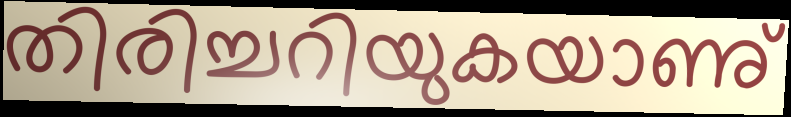
തിരിച്ചറിയുകയാണു്